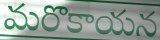
మరొకాయన